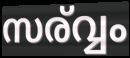
സര്വ്വം